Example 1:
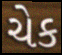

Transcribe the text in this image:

ચેક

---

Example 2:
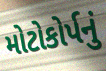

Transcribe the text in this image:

મોટોકોર્પનું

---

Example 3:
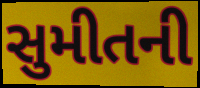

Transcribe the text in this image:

સુમીતની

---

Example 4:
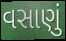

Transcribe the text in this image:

વસાણું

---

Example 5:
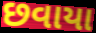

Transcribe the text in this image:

છવાયા